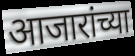
आजारांच्या